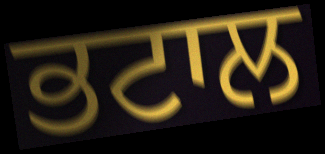
ਭਟਾਲ